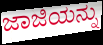
ಜಾಜಿಯನ್ನು